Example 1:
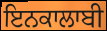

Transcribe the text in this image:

ਇਨਕਾਲਾਬੀ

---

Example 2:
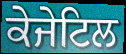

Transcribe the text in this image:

ਕੇਜੇਟਿਲ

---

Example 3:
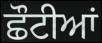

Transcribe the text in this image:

ਛੌਟੀਆਂ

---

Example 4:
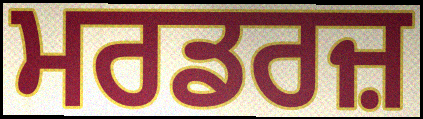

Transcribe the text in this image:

ਮਰਡਰਜ਼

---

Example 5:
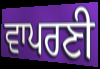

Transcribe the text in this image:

ਵਾਪਰਣੀ